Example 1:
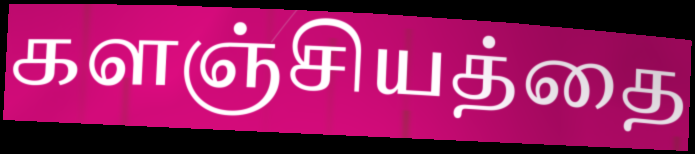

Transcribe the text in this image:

களஞ்சியத்தை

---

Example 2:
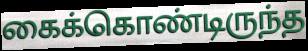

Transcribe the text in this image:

கைக்கொண்டிருந்த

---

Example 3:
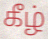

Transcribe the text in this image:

கீழ்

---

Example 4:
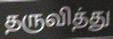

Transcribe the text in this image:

தருவித்து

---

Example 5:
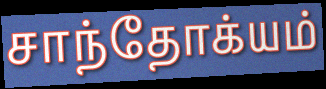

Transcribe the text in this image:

சாந்தோக்யம்